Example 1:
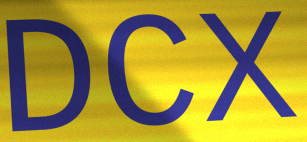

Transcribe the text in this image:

DCX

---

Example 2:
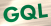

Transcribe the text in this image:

GQL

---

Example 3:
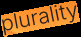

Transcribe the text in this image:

plurality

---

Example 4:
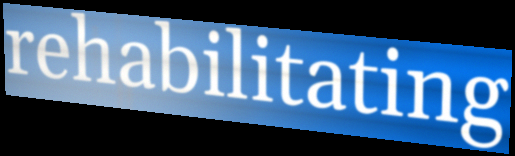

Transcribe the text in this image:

rehabilitating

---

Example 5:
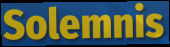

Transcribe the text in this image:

Solemnis